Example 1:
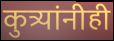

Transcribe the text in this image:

कुत्र्यांनीही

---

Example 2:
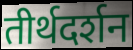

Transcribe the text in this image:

तीर्थदर्शन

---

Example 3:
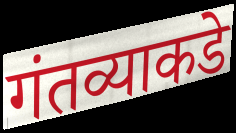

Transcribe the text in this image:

गंतव्याकडे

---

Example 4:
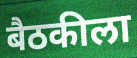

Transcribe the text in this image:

बैठकीला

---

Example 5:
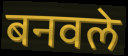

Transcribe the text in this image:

बनवले